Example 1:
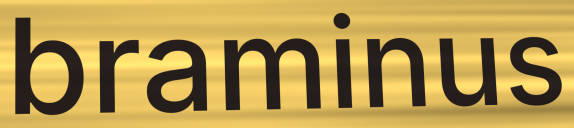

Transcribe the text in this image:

braminus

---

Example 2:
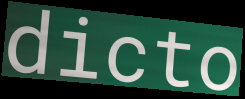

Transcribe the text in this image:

dicto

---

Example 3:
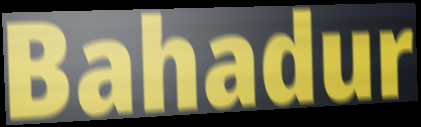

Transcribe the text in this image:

Bahadur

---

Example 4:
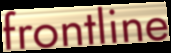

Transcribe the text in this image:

frontline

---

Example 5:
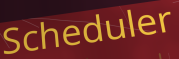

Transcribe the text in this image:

Scheduler